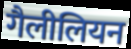
गैलीलियन